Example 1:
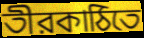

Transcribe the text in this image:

তীরকাঠিতে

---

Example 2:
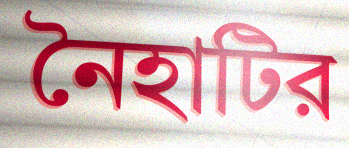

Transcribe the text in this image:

নৈহাটির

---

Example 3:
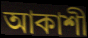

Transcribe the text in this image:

আকাশী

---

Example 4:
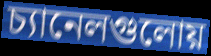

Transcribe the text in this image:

চ্যানেলগুলোয়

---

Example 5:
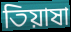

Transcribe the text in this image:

তিয়াষা